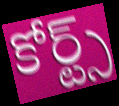
కోర్ట్స్